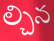
ల్చిన